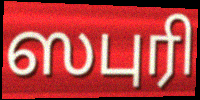
ஸபுரி